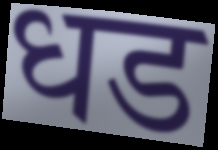
धड